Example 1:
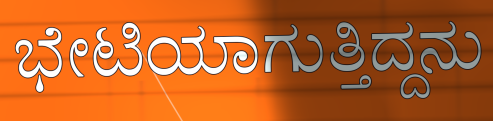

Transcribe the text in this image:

ಭೇಟಿಯಾಗುತ್ತಿದ್ದನು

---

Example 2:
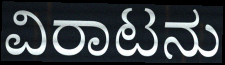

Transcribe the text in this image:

ವಿರಾಟನು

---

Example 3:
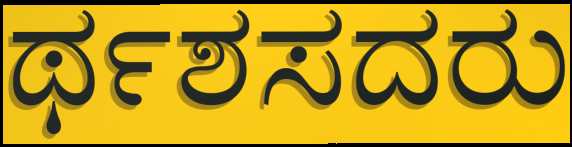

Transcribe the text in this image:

ರ್ಥಶಸದರು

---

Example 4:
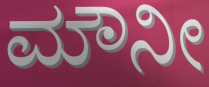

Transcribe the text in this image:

ಮೌನೀ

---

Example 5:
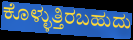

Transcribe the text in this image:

ಕೊಳ್ಳುತ್ತಿರಬಹುದು